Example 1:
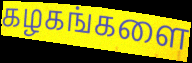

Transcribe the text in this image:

கழகங்களை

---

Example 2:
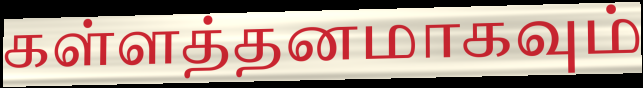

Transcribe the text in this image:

கள்ளத்தனமாகவும்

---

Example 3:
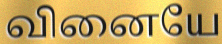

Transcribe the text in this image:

வினையே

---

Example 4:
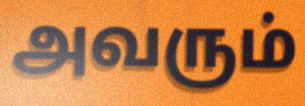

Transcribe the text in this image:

அவரும்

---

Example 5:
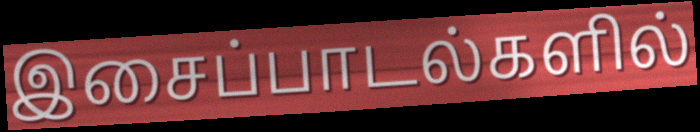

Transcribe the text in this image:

இசைப்பாடல்களில்